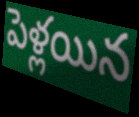
పెళ్లయిన